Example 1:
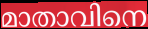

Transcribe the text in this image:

മാതാവിനെ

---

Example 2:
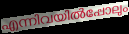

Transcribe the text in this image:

എന്നിവയിൽപ്പോലും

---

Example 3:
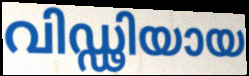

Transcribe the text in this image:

വിഡ്ഢിയായ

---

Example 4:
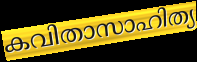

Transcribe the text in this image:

കവിതാസാഹിത്യ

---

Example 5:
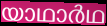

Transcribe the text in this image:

യാഥാർഥ